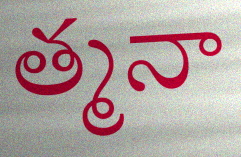
త్మనా